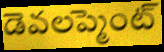
డెవలప్మెంట్